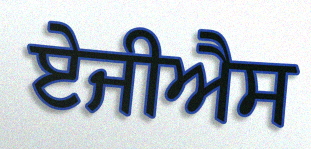
ਏਜੀਐਸ